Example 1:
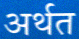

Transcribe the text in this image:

अर्थत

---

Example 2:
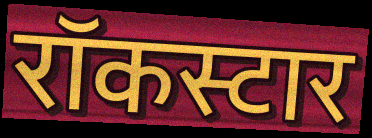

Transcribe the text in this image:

रॉकस्टार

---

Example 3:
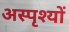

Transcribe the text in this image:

अस्पृश्यों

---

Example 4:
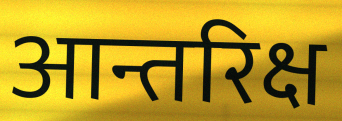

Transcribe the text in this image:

आन्तरिक्ष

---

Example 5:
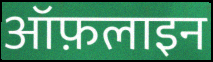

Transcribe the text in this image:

ऑफ़लाइन